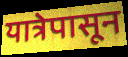
यात्रेपासून